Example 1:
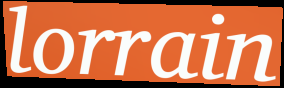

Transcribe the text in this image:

lorrain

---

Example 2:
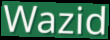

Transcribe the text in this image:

Wazid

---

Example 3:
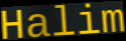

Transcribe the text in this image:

Halim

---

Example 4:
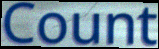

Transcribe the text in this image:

Count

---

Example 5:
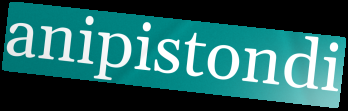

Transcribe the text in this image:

anipistondi